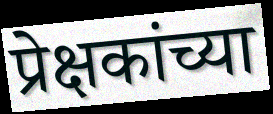
प्रेक्षकांच्या